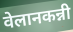
वेलानकन्नी